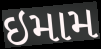
ઇમામ